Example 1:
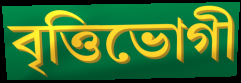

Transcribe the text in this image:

বৃত্তিভোগী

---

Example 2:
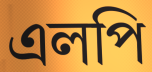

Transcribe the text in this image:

এলপি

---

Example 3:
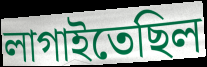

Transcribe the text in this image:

লাগাইতেছিল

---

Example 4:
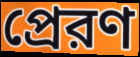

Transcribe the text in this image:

প্রেরণ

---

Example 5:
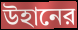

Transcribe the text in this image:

উহানের